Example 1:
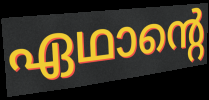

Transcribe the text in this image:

ഏഥാന്റെ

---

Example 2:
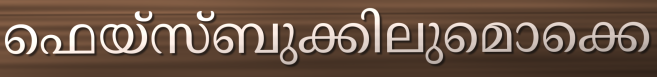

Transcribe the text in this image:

ഫെയ്സ്ബുക്കിലുമൊക്കെ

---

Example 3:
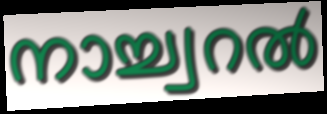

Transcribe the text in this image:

നാച്ച്വറൽ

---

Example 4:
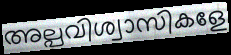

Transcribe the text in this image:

അല്പവിശ്വാസികളേ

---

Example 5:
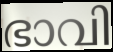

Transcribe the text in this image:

ഭാവി